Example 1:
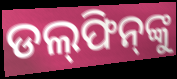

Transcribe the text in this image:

ଡଲ୍‌ଫିନ୍‌ଙ୍କୁ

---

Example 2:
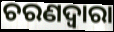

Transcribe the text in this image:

ଚରଣଦ୍ୱାରା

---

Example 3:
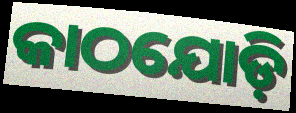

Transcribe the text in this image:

କାଠଯୋଡ଼ି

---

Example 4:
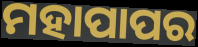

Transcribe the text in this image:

ମହାପାପର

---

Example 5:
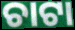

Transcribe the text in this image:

ଚାଟା